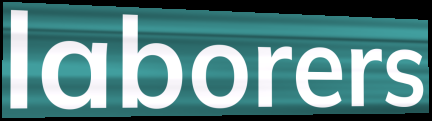
laborers